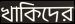
খাকিদের